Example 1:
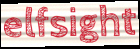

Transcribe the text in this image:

elfsight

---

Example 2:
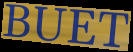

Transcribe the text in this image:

BUET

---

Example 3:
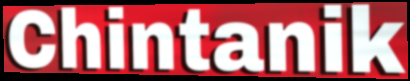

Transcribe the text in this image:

Chintanik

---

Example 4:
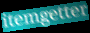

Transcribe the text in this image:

itemgetter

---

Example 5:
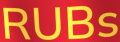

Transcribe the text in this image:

RUBs